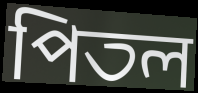
পিতল